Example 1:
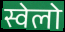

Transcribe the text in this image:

स्वेलो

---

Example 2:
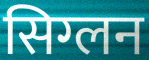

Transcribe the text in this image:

सिग्‍लन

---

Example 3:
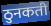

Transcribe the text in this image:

ठुनकती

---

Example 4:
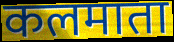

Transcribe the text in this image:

कलमाता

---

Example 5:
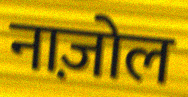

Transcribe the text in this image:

नाज़ोल